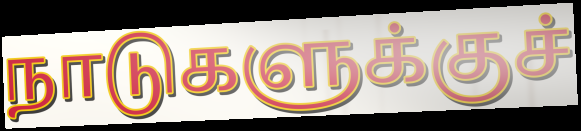
நாடுகளுக்குச்